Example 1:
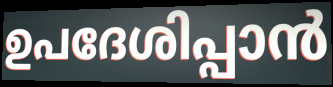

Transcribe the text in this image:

ഉപദേശിപ്പാൻ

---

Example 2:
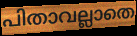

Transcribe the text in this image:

പിതാവല്ലാതെ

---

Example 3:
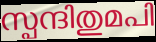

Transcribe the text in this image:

സ്പന്ദിതുമപി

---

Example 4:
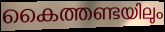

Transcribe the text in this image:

കൈത്തണ്ടയിലും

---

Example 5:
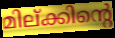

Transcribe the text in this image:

മില്ക്കിന്റെ